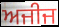
ਅਜੀਜ